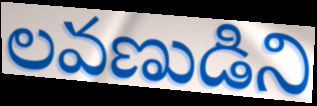
లవణుడిని